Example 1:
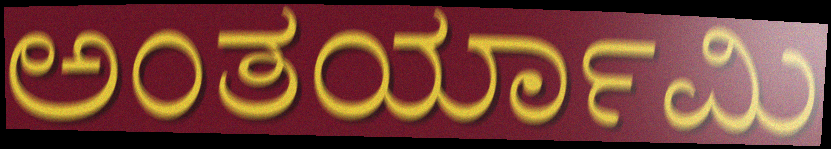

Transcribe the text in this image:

ಅಂತರ್ಯಾಮಿ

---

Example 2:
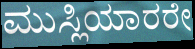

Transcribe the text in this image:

ಮುಸ್ಲಿಯಾರರೇ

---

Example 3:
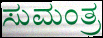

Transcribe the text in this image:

ಸುಮಂತ್ರ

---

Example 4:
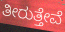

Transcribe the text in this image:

ತೀರುತ್ತೇವೆ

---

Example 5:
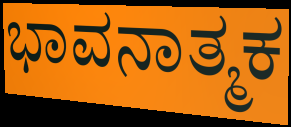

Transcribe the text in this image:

ಭಾವನಾತ್ಮಕ